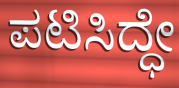
ಪಟಿಸಿದ್ಧೇ